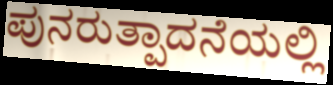
ಪುನರುತ್ಪಾದನೆಯಲ್ಲಿ